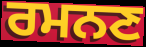
ਰਮਨਣ